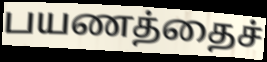
பயணத்தைச்